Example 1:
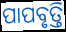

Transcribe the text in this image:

ପାପବୃତ୍ତି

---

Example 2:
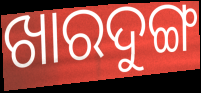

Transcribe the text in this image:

ଖାରଦୁଙ୍ଗ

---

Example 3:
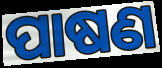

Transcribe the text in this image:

ପାଷଣ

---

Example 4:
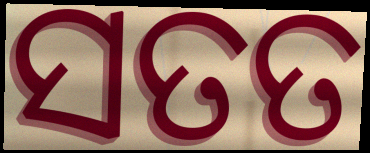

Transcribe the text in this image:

ସତତ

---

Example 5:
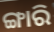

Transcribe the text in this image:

ଙ୍ଗାରି